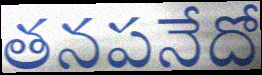
తనపనేదో